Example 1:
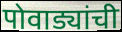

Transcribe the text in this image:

पोवाड्यांची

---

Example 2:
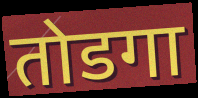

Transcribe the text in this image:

तोडगा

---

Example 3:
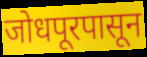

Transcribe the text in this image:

जोधपूरपासून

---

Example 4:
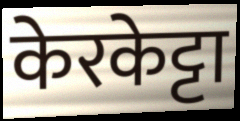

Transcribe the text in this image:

केरकेट्टा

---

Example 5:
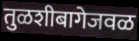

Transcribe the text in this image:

तुळशीबागेजवळ